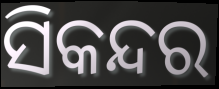
ସିକନ୍ଦର